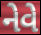
નેવે